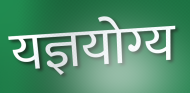
यज्ञयोग्य